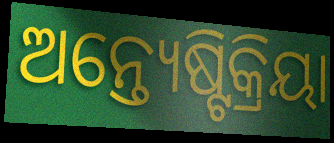
ଅନ୍ତ୍ୟେଷ୍ଟିକ୍ରିୟା